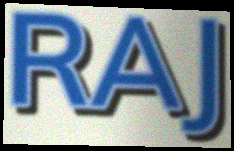
RAJ